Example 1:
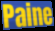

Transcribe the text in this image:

Paine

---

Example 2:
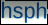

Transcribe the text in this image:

hsph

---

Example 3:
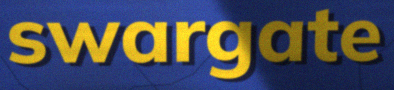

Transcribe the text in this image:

swargate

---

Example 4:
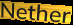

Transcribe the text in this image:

Nether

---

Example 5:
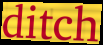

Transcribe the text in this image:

ditch